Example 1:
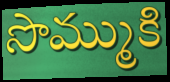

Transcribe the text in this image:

సొమ్ముకి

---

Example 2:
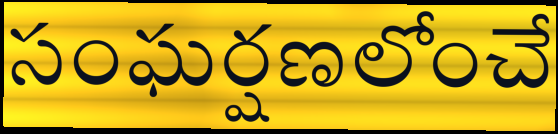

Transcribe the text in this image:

సంఘర్షణలోంచే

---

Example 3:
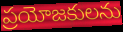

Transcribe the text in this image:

ప్రయోజకులను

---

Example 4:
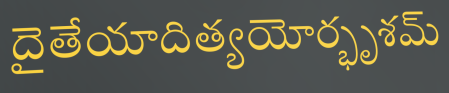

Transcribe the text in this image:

దైతేయాదిత్యయోర్భృశమ్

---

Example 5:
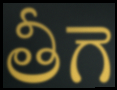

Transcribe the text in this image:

తీగె